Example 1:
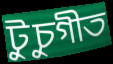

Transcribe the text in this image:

টুচুগীত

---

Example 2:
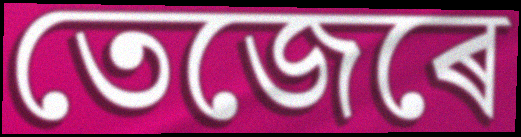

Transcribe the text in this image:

তেজেৰে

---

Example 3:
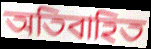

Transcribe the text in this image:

অতিবাহিত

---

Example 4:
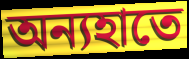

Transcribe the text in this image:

অন্যহাতে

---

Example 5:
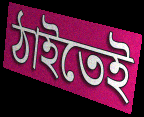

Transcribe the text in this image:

ঠাইতেই